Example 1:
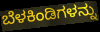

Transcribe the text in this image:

ಬೆಳಕಿಂಡಿಗಳನ್ನು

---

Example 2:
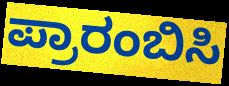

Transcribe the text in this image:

ಪ್ರಾರಂಬಿಸಿ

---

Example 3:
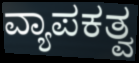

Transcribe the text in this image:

ವ್ಯಾಪಕತ್ವ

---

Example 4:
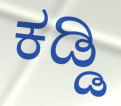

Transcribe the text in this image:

ಕಡ್ಡಿ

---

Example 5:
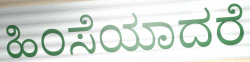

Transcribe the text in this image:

ಹಿಂಸೆಯಾದರೆ